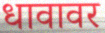
धावावर